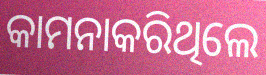
କାମନାକରିଥିଲେ